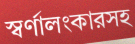
স্বর্ণালংকারসহ